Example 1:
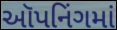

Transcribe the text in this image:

ઑપનિંગમાં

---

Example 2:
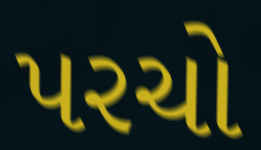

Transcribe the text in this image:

પરચો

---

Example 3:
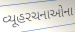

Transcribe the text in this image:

વ્યૂહરચનાઓના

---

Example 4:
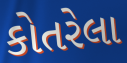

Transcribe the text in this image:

કોતરેલા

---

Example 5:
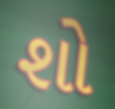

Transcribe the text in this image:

શો